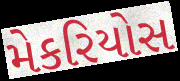
મેકરિયોસ